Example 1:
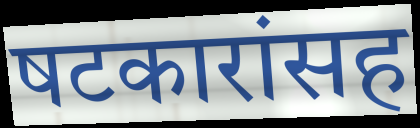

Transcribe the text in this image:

षटकारांसह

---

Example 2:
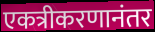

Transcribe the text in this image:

एकत्रीकरणानंतर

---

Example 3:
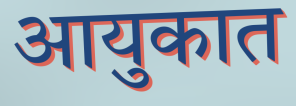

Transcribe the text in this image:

आयुकात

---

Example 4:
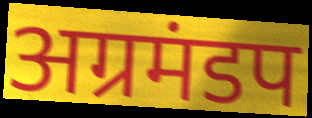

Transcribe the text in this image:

अग्रमंडप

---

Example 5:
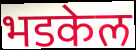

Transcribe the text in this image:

भडकेल